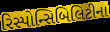
રિસ્પોન્સિબિલિટીના